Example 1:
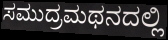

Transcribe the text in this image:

ಸಮುದ್ರಮಥನದಲ್ಲಿ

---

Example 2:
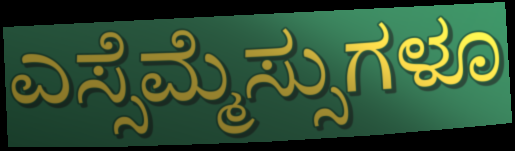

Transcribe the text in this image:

ಎಸ್ಸೆಮ್ಮೆಸ್ಸುಗಳೂ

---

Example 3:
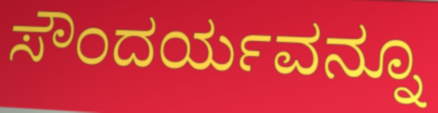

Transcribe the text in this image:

ಸೌಂದರ್ಯವನ್ನೂ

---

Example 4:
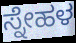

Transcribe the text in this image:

ಸ್ನೇಹಳ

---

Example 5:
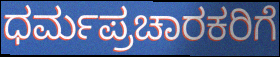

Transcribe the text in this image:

ಧರ್ಮಪ್ರಚಾರಕರಿಗೆ